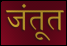
जंतूत